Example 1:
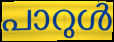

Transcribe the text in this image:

പാറുൾ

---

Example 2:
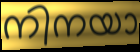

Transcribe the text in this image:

നിനയാ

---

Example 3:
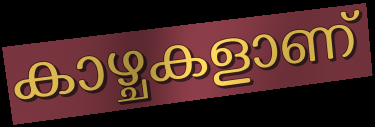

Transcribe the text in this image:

കാഴ്ചകളാണ്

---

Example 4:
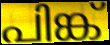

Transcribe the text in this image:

പിങ്ക്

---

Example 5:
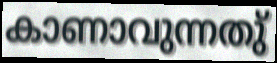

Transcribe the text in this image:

കാണാവുന്നതു്